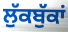
ਲੁੱਕਬੁੱਕਾਂ